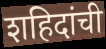
शहिदांची